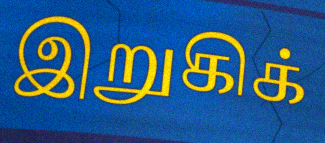
இறுகிக்